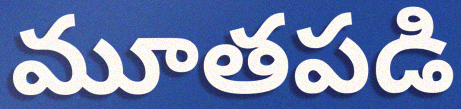
మూతపడి